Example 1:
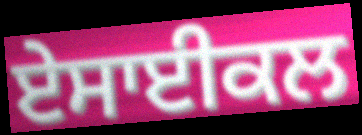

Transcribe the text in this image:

ਏਸਾਈਕਲ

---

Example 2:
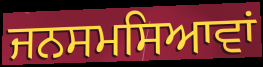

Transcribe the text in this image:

ਜਨਸਮਸਿਆਵਾਂ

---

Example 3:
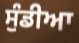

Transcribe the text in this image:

ਸੁੰਡੀਆ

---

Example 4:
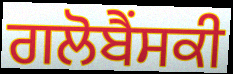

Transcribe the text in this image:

ਗਲੋਬੈਂਸਕੀ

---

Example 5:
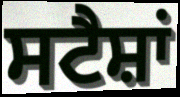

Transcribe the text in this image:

ਸਟੈਸ਼ਾਂ